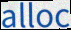
alloc